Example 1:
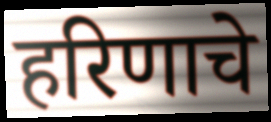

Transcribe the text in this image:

हरिणाचे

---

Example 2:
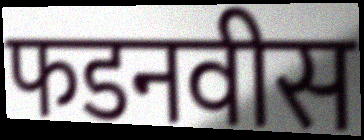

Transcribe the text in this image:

फडनवीस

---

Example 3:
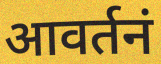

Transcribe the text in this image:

आवर्तनं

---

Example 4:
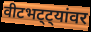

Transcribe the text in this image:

वीटभट्ट्यांवर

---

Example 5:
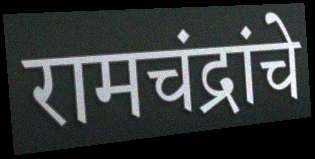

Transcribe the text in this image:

रामचंद्रांचे